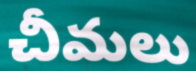
చీమలు